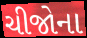
ચીજોના